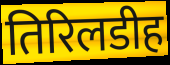
तिरिलडीह